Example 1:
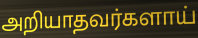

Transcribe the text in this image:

அறியாதவர்களாய்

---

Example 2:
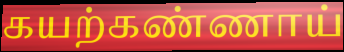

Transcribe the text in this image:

கயற்கண்ணாய்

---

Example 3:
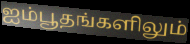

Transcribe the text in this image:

ஐம்பூதங்களிலும்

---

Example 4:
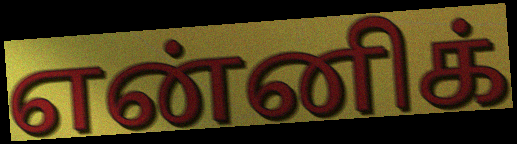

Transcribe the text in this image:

என்னிக்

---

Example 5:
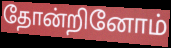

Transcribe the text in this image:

தோன்றினோம்